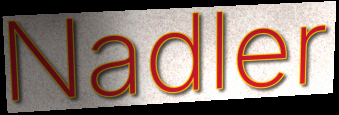
Nadler